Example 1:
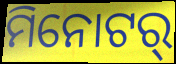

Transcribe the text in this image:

ମିନୋଟର୍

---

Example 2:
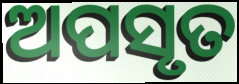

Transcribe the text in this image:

ଅପସୃତ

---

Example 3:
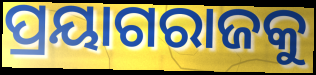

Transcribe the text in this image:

ପ୍ରୟାଗରାଜକୁ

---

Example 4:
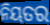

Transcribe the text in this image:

ନିୟତର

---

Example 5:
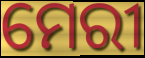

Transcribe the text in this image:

ମେରୀ